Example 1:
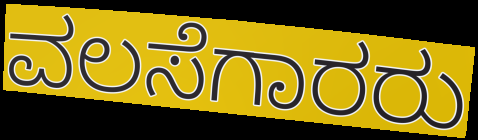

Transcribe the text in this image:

ವಲಸೆಗಾರರು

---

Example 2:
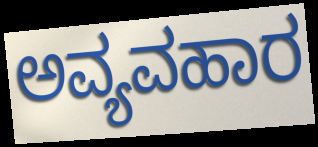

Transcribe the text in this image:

ಅವ್ಯವಹಾರ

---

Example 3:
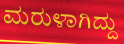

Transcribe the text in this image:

ಮರುಳಾಗಿದ್ದು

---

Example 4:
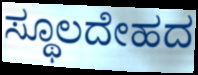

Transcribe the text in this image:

ಸ್ಥೂಲದೇಹದ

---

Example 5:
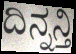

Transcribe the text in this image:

ದಿನ್ನನ್ತಿ